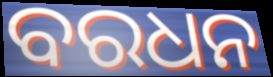
ବରଧନ